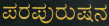
ಪರಪುರುಷನ